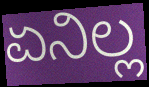
ಏನಿಲ್ಲ